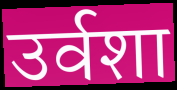
उर्वशा